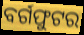
ବର୍ଗଫୁଟର